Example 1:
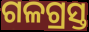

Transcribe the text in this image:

ଗଳଗ୍ରସ୍ତ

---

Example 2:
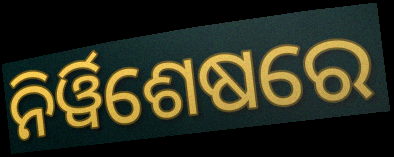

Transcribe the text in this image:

ନିର୍ୱିଶେଷରେ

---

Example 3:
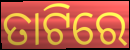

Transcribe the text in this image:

ତାଟିରେ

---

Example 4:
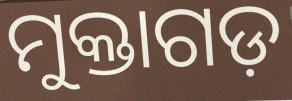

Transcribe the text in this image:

ମୁକ୍ତାଗଡ଼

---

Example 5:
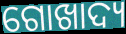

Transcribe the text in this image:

ଗୋଖାଦ୍ୟ